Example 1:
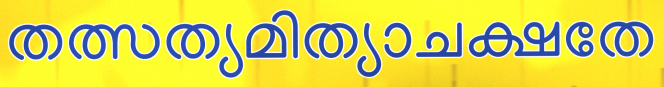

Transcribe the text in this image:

തത്സത്യമിത്യാചക്ഷതേ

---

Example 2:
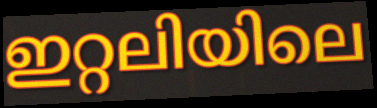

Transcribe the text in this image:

ഇറ്റലിയിലെ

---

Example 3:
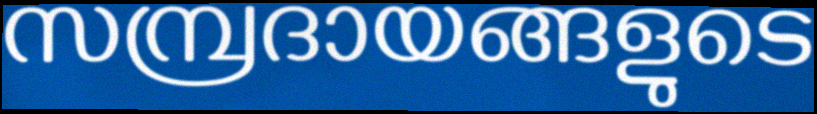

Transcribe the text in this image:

സമ്പ്രദായങ്ങളുടെ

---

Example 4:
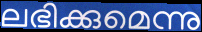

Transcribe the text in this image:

ലഭിക്കുമെന്നു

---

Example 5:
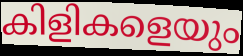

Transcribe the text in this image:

കിളികളെയും